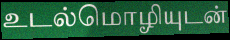
உடல்மொழியுடன்